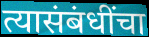
त्यासंबंधींचा